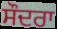
ਸੌਦਰਾ